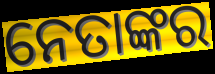
ନେତାଙ୍କର